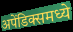
अपेंडिक्समध्ये